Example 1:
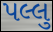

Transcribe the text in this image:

પલ્લુ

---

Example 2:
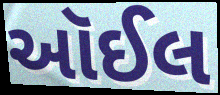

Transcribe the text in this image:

ઑઈલ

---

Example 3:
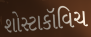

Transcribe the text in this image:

શોસ્ટાકૉવિચ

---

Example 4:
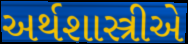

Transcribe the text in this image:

અર્થશાસ્ત્રીએ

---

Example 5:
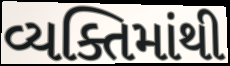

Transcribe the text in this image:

વ્યક્તિમાંથી